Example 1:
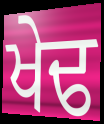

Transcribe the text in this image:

ਖੇਢ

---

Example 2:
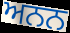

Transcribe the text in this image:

ਅਨਨ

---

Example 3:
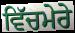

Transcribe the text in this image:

ਵਿੱਚਮੇਰੇ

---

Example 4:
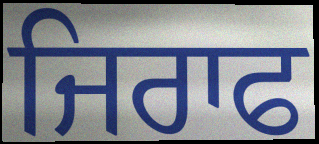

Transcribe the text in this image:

ਜਿਰਾਫ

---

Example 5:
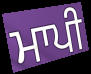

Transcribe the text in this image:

ਮਾਪੀ